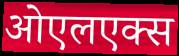
ओएलएक्स